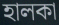
হালকা